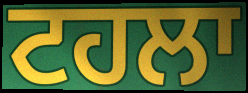
ਟਹਲਾ